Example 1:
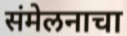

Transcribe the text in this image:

संमेलनाचा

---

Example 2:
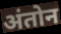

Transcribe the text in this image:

अंतोन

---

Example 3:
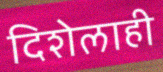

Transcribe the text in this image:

दिशेलाही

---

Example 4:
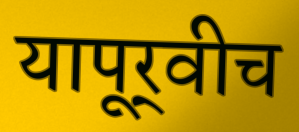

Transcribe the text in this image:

यापूर्वीच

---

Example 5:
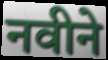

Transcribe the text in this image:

नवीने